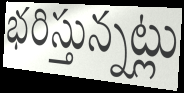
భరిస్తున్నట్లు